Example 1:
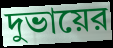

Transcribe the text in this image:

দুভায়ের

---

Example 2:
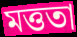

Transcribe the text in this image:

মত্ততা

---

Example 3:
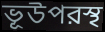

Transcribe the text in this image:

ভূউপরস্থ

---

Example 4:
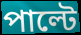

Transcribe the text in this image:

পাল্টে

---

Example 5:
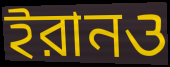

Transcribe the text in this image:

ইরানও